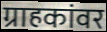
ग्राहकांवर